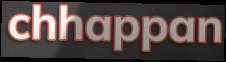
chhappan